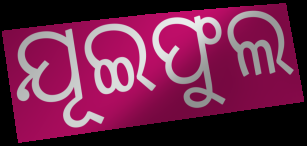
ଯୂଇଫୁଲ